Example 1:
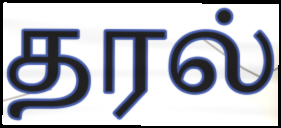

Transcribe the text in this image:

தரல்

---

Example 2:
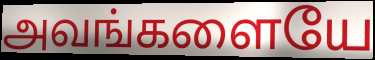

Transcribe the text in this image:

அவங்களையே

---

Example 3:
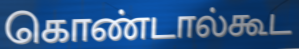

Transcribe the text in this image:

கொண்டால்கூட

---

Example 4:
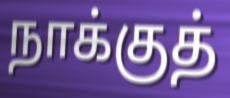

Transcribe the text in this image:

நாக்குத்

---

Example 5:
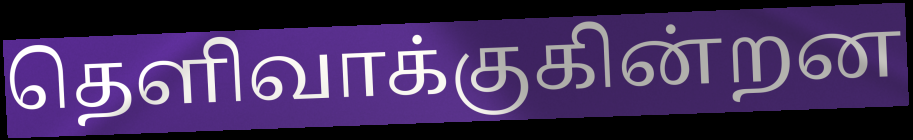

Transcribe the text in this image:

தெளிவாக்குகின்றன